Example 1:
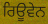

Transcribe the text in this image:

ਰਿਊਵੇਨ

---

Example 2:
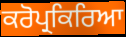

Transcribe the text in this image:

ਕਰੋਪ੍ਰਕਿਰਿਆ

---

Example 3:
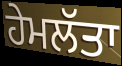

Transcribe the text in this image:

ਹੇਮਲੱਤਾ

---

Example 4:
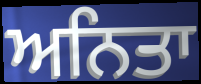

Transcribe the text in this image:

ਅਨਿਤਾ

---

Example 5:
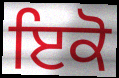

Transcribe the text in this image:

ਇਕੋ